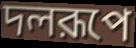
দলরূপে